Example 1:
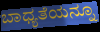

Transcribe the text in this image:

ಬಾಧ್ಯತೆಯನ್ನೂ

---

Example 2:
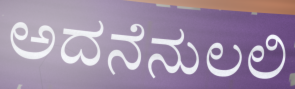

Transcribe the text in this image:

ಅದನೆನುಲಲಿ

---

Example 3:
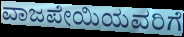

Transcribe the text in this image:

ವಾಜಪೇಯಿಯವರಿಗೆ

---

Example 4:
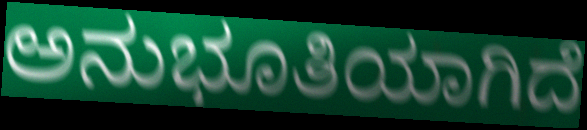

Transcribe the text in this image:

ಅನುಭೂತಿಯಾಗಿದೆ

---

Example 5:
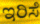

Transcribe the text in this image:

ಇರಿಸೆ